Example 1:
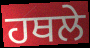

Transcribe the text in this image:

ਹਥਲੇ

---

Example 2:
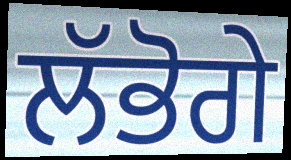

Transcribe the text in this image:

ਲੱਭੋਗੇ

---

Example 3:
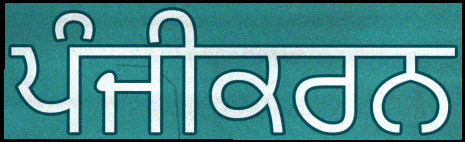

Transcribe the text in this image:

ਪੰਜੀਕਰਨ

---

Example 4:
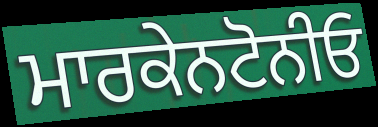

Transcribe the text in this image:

ਮਾਰਕੇਨਟੋਨੀਓ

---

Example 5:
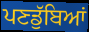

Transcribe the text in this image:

ਪਣਡੁੱਬਿਆਂ